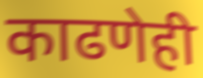
काढणेही